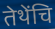
तेथेंचि